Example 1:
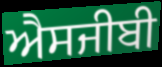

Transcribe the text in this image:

ਐਸਜੀਬੀ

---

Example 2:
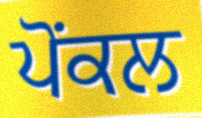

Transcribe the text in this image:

ਪੋਂਕਲ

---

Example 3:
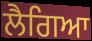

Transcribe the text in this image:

ਲੈਗਿਆ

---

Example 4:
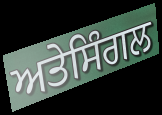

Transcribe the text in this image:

ਅਤੇਸਿੰਗਲ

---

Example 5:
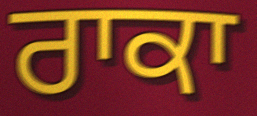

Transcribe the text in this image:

ਰਾਕਾ